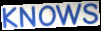
KNOWS